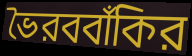
ভৈরববাঁকির